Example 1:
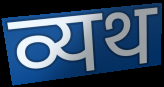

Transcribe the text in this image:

व्यथ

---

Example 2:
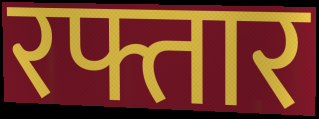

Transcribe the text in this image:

रफ्‍तार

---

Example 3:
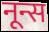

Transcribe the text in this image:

नून्स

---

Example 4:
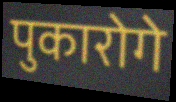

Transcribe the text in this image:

पुकारोगे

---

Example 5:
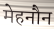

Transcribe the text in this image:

मेहनौन